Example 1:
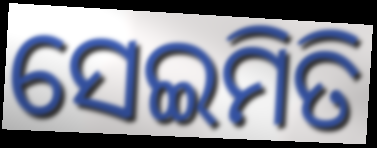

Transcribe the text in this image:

ସେଇମିତି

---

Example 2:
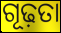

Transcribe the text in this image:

ଗୂଢ଼ତା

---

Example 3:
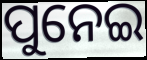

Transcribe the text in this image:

ପୁନେଇ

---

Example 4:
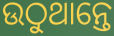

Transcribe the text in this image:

ଉଠୁଥାନ୍ତେ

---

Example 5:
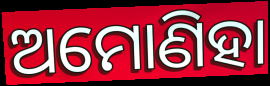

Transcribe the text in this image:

ଅମୋଣିହା